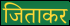
जिताकर